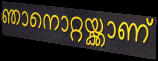
ഞാനൊറ്റയ്ക്കാണ്